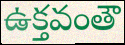
ఉక్తవంతౌ